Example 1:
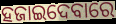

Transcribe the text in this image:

ହଜାଇଦେବାରେ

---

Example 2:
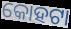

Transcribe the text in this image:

କୋହଟା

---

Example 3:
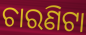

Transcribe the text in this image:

ଚାରଣିଟା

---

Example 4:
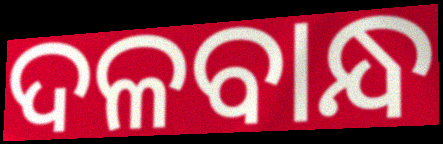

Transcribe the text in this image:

ଦଳବାନ୍ଧ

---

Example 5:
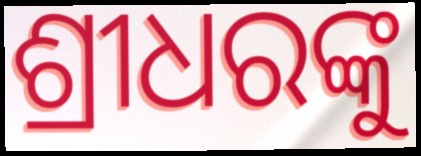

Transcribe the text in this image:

ଶ୍ରୀଧରଙ୍କୁ